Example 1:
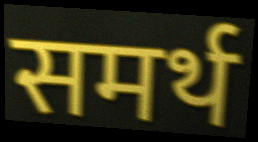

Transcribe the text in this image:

समर्थ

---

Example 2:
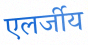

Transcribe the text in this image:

एलर्जीय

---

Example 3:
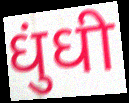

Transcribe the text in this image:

धुंधी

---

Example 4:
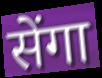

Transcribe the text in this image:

सेंगा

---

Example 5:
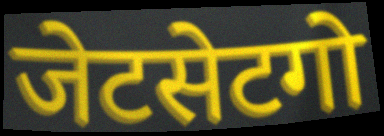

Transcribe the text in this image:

जेटसेटगो